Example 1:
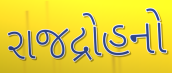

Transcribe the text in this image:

રાજદ્રોહનો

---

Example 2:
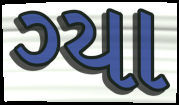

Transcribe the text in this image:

ગ્યા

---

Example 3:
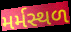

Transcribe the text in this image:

મર્મસ્થળ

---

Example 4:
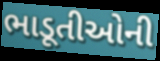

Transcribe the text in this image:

ભાડૂતીઓની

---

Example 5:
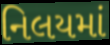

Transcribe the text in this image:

નિલયમાં